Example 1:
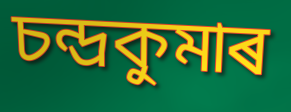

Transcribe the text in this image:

চন্দ্ৰকুমাৰ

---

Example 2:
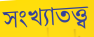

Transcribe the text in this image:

সংখ্যাতত্ত্ব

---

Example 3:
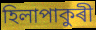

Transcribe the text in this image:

হিলাপাকুৰী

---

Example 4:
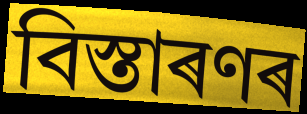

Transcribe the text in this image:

বিস্তাৰণৰ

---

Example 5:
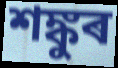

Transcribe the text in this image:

শঙ্কুৰ